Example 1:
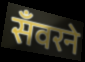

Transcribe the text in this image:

सँवरने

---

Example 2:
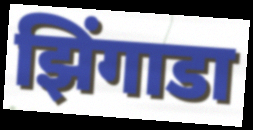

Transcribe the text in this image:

झिंगाडा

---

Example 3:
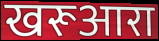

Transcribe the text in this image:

खरूआरा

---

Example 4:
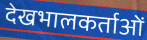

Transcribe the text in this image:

देखभालकर्ताओं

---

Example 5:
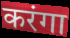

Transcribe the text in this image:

करंगा